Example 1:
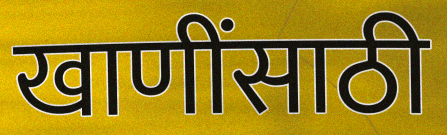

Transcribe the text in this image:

खाणींसाठी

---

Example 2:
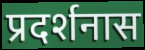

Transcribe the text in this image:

प्रदर्शनास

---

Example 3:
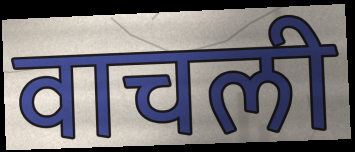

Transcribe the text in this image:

वाचली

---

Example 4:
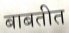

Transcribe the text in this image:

बाबतीत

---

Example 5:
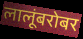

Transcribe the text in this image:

लालूंबरोबर